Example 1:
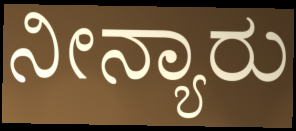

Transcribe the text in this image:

ನೀನ್ಯಾರು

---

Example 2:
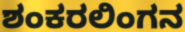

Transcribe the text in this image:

ಶಂಕರಲಿಂಗನ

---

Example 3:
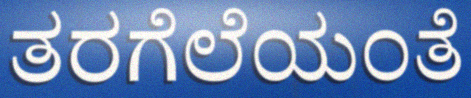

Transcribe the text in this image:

ತರಗೆಲೆಯಂತೆ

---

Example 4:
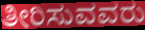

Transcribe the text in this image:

ತೀರಿಸುವವರು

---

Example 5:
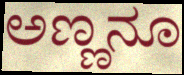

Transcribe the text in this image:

ಅಣ್ಣನೂ